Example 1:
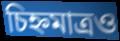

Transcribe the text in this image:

চিহ্নমাত্রও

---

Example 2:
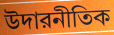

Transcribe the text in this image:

উদারনীতিক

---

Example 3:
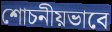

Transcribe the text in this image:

শোচনীয়ভাবে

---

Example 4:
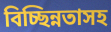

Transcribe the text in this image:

বিচ্ছিন্নতাসহ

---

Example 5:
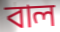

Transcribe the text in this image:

বাল